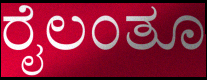
ರೈಲಂತೂ